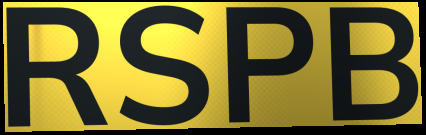
RSPB